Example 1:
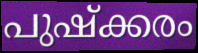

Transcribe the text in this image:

പുഷ്ക്കരം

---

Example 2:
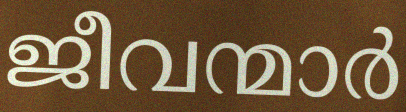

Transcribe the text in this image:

ജീവന്മാർ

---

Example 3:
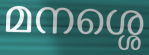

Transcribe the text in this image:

മനശ്ശെ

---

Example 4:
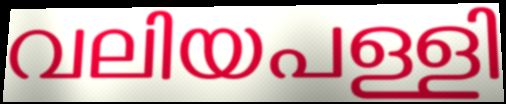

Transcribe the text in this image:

വലിയപള്ളി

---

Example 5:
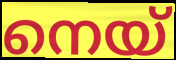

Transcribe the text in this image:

നെയ്